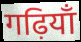
गढ़ियाँ